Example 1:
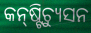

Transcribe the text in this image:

କନ୍‍ଷ୍ଟିଚ୍ୟୁସନ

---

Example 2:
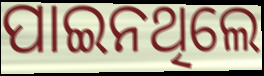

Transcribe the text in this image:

ପାଇନଥିଲେ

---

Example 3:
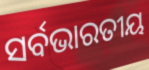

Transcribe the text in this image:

ସର୍ବଭାରତୀୟ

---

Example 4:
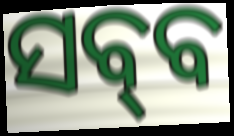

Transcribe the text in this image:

ସବ୍‌ବ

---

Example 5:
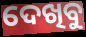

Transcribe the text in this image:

ଦେଖିବୁ